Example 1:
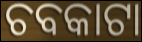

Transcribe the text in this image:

ଚବକାଟା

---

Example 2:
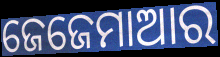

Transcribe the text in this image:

ଜେଜେମାଆର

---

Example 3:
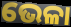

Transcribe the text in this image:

ଭେଳା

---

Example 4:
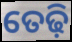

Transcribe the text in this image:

ତେଢ଼ି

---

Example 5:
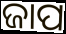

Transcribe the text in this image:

ଜାପ